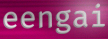
eengai